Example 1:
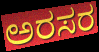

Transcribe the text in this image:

ಅರಸರ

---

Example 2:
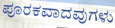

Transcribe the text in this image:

ಪೂರಕವಾದವುಗಳು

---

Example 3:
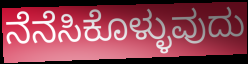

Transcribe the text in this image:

ನೆನೆಸಿಕೊಳ್ಳುವುದು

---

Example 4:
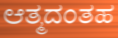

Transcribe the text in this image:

ಆತ್ಮದಂತಹ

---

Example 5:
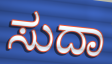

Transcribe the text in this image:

ಸುದಾ